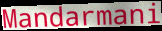
Mandarmani